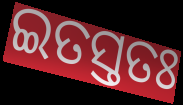
ଇତସ୍ତତଃ